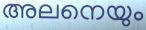
അലനെയും